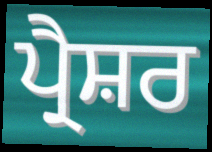
ਪ੍ਰੈਸ਼ਰ